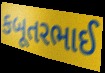
કબૂતરભાઈ